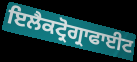
ਇਲੈਕਟ੍ਰੋਗ੍ਰਾਫਾਈਟ